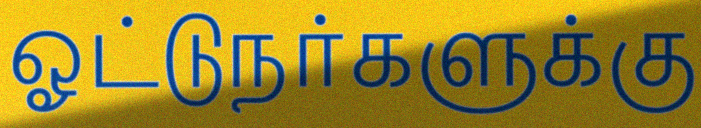
ஓட்டுநர்களுக்கு